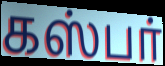
கஸ்பர்